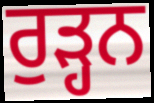
ਰੁੜ੍ਹਨ